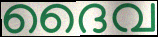
ദൈവ